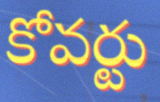
కోవర్టు